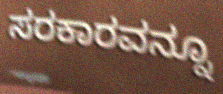
ಸರಕಾರವನ್ನೂ